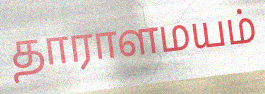
தாராளமயம்